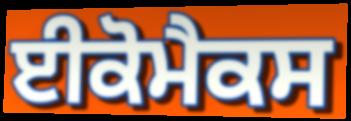
ਈਕੋਮੈਕਸ